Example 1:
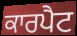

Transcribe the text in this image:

ਕਾਰਪੈਟ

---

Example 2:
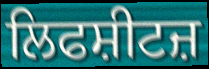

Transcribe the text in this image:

ਲਿਫਸ਼ੀਟਜ਼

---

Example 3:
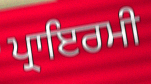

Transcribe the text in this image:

ਪ੍ਰਾਇਰਮੀ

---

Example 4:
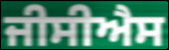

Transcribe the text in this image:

ਜੀਸੀਐਸ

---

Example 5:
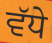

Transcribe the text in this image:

ਵੱਧੇ